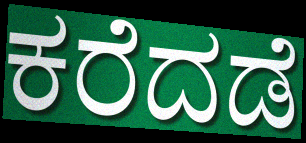
ಕರೆದಡೆ